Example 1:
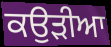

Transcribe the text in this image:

ਕਉੜੀਆ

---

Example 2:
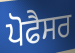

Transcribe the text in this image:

ਪੋਫੈਸਰ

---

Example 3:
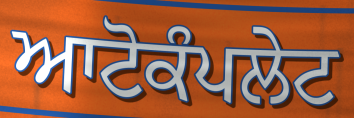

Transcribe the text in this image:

ਆਟੋਕੰਪਲੇਟ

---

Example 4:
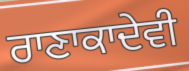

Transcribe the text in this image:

ਰਾਣਾਕਾਦੇਵੀ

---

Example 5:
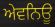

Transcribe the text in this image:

ਅੇਵਨਿਊ